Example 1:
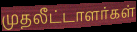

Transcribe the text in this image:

முதலீட்டாளர்கள்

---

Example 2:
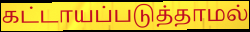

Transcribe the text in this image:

கட்டாயப்படுத்தாமல்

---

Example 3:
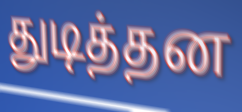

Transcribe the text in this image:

துடித்தன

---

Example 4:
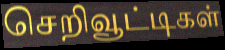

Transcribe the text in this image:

செறிவூட்டிகள்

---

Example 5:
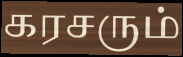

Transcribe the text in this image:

கரசரும்